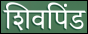
शिवपिंड